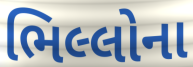
ભિલ્લોના